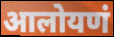
आलोयणं